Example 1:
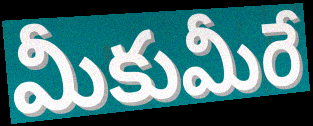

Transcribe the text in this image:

మీకుమీరే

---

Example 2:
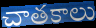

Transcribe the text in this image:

చాతకాలు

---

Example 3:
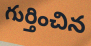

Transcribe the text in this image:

గుర్తించిన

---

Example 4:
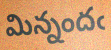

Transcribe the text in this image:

మిన్నందఁ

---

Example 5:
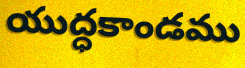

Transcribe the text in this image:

యుద్ధకాండము